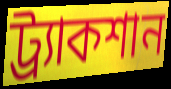
ট্র্যাকশান